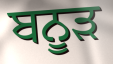
ਬਨੂੜ